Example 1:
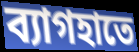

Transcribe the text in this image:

ব্যাগহাতে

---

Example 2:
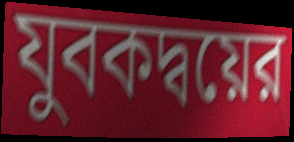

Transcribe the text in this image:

যুবকদ্বয়ের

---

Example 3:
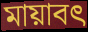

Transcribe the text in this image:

মায়াবৎ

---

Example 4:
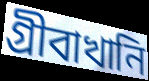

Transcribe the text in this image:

গ্রীবাখানি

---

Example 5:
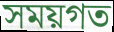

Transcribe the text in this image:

সময়গত